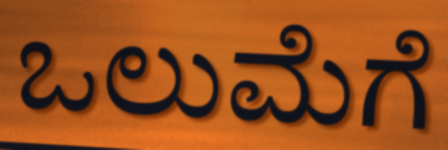
ಒಲುಮೆಗೆ